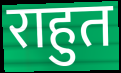
राहुत